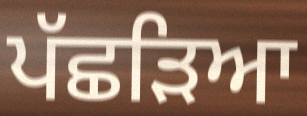
ਪੱਛੜਿਆ